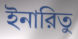
ইনারিতু